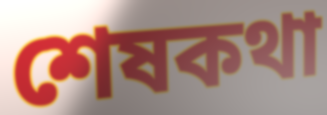
শেষকথা